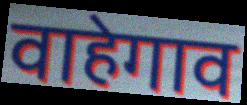
वाहेगाव